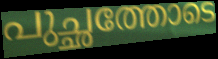
പുച്ഛത്തോടെ